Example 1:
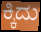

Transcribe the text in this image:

ಕ್ಕಿದು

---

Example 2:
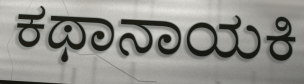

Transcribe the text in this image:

ಕಥಾನಾಯಕಿ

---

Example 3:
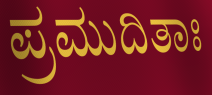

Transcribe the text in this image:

ಪ್ರಮುದಿತಾಃ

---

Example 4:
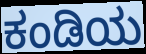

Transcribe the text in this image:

ಕಂಡಿಯ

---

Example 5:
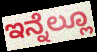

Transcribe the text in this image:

ಇನ್ನೆಲ್ಲೂ